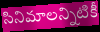
సినిమాలన్నిటికీ